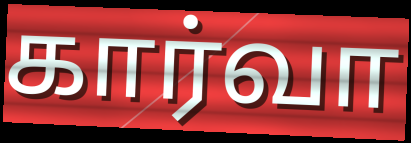
கார்வா